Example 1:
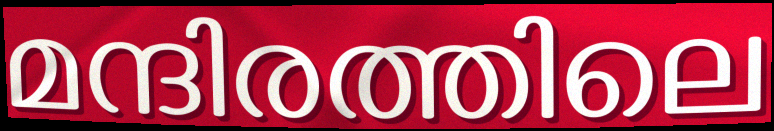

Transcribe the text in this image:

മന്ദിരത്തിലെ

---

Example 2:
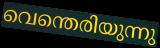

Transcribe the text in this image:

വെന്തെരിയുന്നു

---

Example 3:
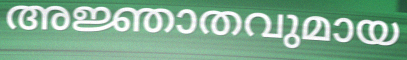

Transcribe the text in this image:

അജ്ഞാതവുമായ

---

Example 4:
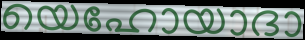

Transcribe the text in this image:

യെഹോയാദാ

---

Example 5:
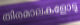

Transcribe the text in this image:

തിരമാലകളോടു